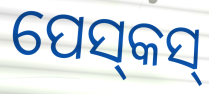
ପେସ୍‌କସ୍